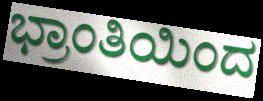
ಭ್ರಾಂತಿಯಿಂದ